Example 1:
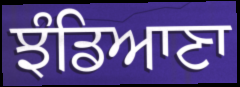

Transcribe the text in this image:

ਝੰਡਿਆਣਾ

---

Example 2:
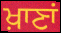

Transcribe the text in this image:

ਖ਼ਾਣਾਂ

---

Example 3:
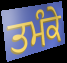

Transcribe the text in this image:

ਤਮੰਕੇ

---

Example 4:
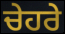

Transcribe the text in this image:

ਚੇਹਰੇ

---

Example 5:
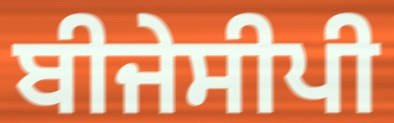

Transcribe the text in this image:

ਬੀਜੇਸੀਪੀ